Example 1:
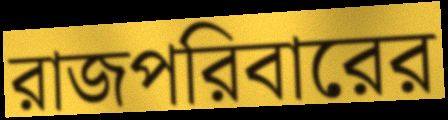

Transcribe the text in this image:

রাজপরিবারের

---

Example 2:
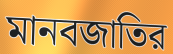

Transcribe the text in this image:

মানবজাতির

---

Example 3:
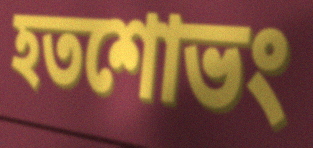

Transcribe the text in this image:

হতশোভং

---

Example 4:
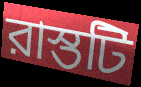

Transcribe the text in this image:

রাস্তটি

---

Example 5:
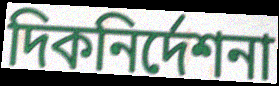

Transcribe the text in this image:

দিকনির্দেশনা